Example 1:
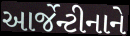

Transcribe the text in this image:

આર્જેન્ટીનાને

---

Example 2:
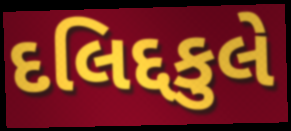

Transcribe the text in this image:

દલિદ્દકુલે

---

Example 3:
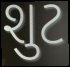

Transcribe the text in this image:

શુટ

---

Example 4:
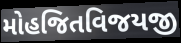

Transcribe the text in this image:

મોહજિતવિજયજી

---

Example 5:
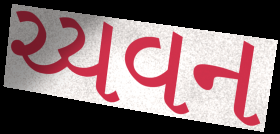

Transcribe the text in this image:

ચ્યવન